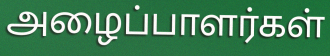
அழைப்பாளர்கள்